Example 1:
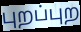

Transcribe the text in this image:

புறப்புற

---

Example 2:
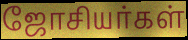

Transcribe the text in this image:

ஜோசியர்கள்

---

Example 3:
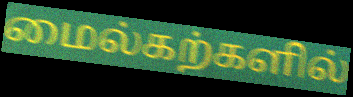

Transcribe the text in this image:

மைல்கற்களில்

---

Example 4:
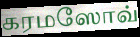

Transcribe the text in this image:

கரமஸோவ்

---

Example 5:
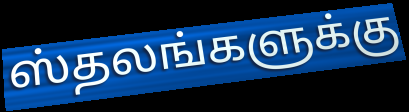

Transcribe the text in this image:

ஸ்தலங்களுக்கு